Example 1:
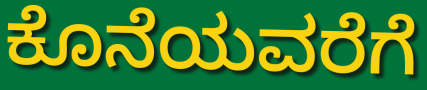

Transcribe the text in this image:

ಕೊನೆಯವರೆಗೆ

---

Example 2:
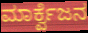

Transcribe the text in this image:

ಮಾರ್ಕ್ವೆಜನ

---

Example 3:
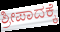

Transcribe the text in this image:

ಶ್ರೀಪಾದಕ್ಕೆ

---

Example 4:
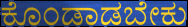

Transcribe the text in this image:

ಕೊಂಡಾಡಬೇಕು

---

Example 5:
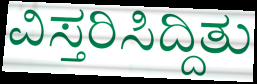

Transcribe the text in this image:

ವಿಸ್ತರಿಸಿದ್ದಿತು